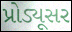
પ્રોડ્યૂસર